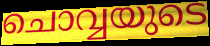
ചൊവ്വയുടെ